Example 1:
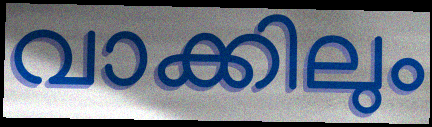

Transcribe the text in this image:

വാക്കിലും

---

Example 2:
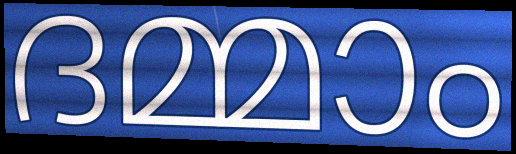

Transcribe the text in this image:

ദമ്മാം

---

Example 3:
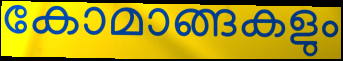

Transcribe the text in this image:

കോമാങ്ങകളും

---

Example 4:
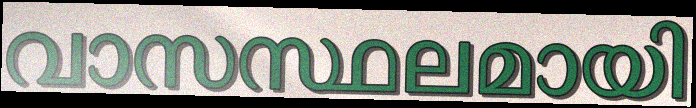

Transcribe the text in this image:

വാസസ്ഥലമായി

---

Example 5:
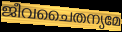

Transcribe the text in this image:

ജീവചൈതന്യമേ